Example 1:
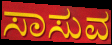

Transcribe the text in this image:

ಸಾಸುವ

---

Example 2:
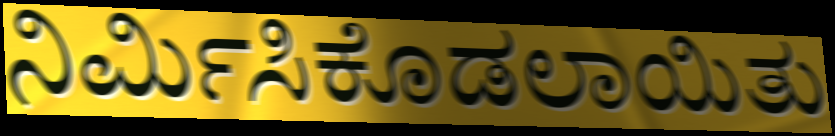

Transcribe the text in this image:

ನಿರ್ಮಿಸಿಕೊಡಲಾಯಿತು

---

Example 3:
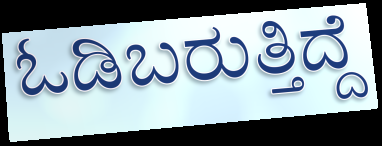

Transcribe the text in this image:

ಓಡಿಬರುತ್ತಿದ್ದೆ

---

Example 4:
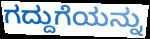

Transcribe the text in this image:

ಗದ್ದುಗೆಯನ್ನು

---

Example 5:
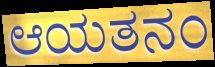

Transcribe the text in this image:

ಆಯತನಂ